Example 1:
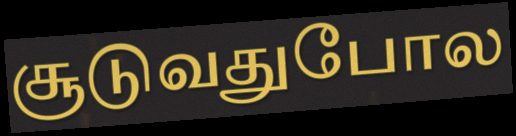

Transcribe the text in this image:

சூடுவதுபோல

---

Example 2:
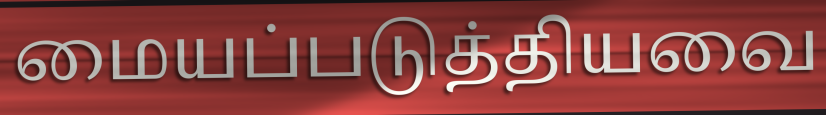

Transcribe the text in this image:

மையப்படுத்தியவை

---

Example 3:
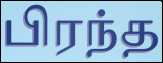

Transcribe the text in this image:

பிரந்த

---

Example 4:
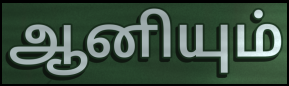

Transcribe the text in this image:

ஆனியும்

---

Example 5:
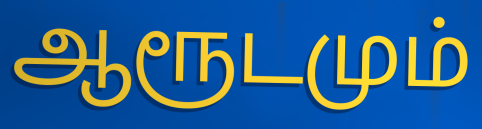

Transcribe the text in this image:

ஆரூடமும்